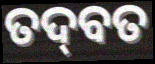
ତଦ୍‌ବତ